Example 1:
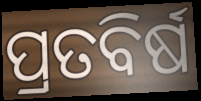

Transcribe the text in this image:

ପ୍ରତବିର୍ଷ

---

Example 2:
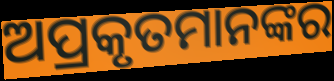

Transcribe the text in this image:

ଅପ୍ରକୃତମାନଙ୍କର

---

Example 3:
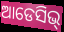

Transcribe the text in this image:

ଆଡେସିଭ୍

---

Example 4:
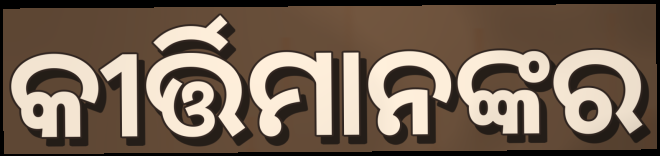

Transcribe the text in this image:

କୀର୍ତ୍ତିମାନଙ୍କର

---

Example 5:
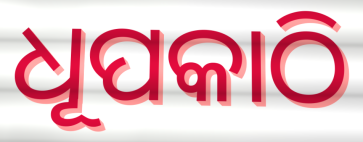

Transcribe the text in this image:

ଧୂପକାଠି